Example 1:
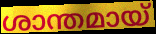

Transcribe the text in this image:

ശാന്തമായ്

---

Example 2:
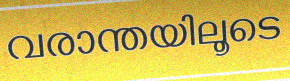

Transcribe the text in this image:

വരാന്തയിലൂടെ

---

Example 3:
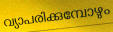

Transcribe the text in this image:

വ്യാപരിക്കുമ്പോഴും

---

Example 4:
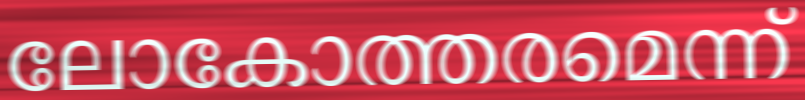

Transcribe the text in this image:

ലോകോത്തരമെന്ന്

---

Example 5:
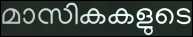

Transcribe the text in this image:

മാസികകളുടെ